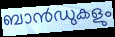
ബാൻഡുകളും